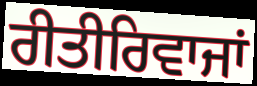
ਰੀਤੀਰਿਵਾਜਾਂ